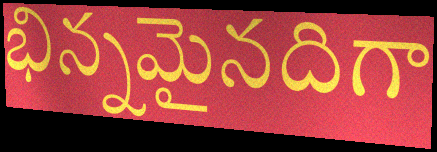
భిన్నమైనదిగా